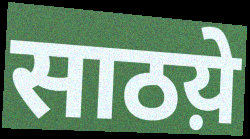
साठय़े